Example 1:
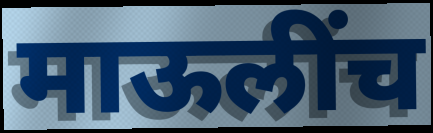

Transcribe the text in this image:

माऊलींच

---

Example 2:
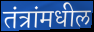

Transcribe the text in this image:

तंत्रांमधील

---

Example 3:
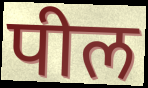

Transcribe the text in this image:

पील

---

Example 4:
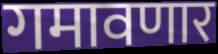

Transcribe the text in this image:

गमावणार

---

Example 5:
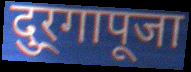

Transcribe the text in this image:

दुर्गापूजा